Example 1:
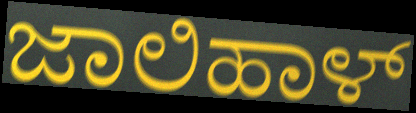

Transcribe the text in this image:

ಜಾಲಿಹಾಳ್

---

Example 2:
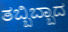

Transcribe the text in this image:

ತಬ್ಬಿಬ್ಬಾದ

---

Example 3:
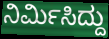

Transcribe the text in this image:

ನಿರ್ಮಿಸಿದ್ದು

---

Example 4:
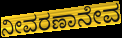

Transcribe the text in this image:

ನೀವರಣಾನೇವ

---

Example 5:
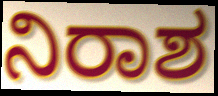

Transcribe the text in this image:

ನಿರಾಶ